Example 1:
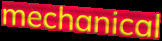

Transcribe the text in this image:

mechanical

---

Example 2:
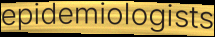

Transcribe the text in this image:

epidemiologists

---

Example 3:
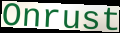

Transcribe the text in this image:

Onrust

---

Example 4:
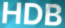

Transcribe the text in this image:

HDB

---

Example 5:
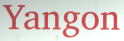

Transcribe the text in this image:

Yangon